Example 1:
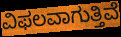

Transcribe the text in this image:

ವಿಫಲವಾಗುತ್ತಿವೆ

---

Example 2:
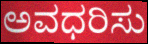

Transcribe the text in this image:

ಅವಧರಿಸು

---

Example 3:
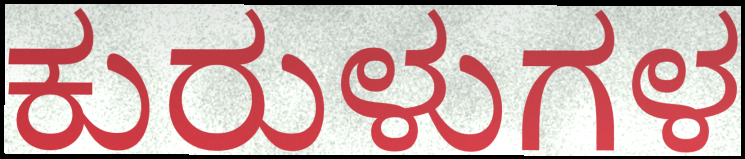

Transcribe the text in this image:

ಕುರುಳುಗಳ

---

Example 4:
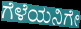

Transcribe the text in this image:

ಗೆಳೆಯನಿಗೇ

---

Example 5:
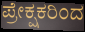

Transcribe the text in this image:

ಪ್ರೇಕ್ಷಕರಿಂದ